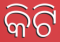
କିଟି